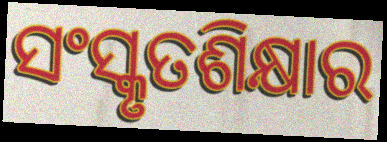
ସଂସ୍କୃତଶିକ୍ଷାର